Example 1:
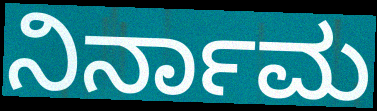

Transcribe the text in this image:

ನಿರ್ನಾಮ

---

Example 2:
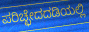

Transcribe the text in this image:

ಪರಿಚ್ಛೇದದಡಿಯಲ್ಲಿ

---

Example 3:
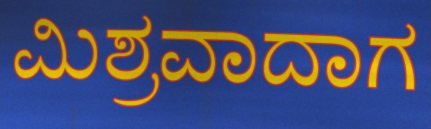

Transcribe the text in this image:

ಮಿಶ್ರವಾದಾಗ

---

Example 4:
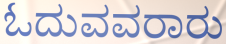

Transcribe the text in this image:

ಓದುವವರಾರು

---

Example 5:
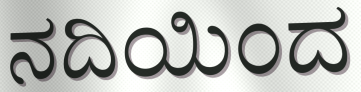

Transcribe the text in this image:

ನದಿಯಿಂದ